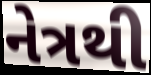
નેત્રથી